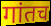
गांतच